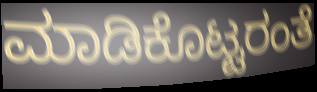
ಮಾಡಿಕೊಟ್ಟರಂತೆ